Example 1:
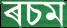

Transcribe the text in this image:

ৰচম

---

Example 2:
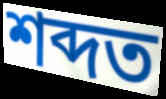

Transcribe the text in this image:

শব্দত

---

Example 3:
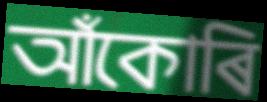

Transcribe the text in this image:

আঁকোৰি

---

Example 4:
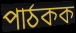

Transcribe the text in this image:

পাঠকক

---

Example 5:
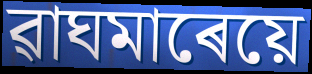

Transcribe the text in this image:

ৱাঘমাৰেয়ে